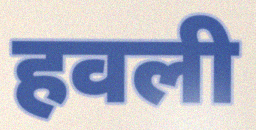
हवली